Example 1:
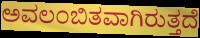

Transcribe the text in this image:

ಅವಲಂಬಿತವಾಗಿರುತ್ತದೆ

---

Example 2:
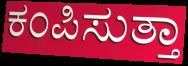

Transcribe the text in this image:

ಕಂಪಿಸುತ್ತಾ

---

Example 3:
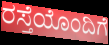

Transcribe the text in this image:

ರಸ್ತೆಯೊಂದಿಗೆ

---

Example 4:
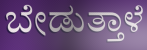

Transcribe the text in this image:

ಬೇಡುತ್ತಾಳೆ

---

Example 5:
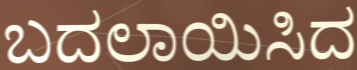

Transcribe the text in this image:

ಬದಲಾಯಿಸಿದ